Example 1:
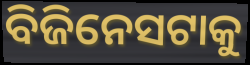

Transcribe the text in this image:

ବିଜିନେସଟାକୁ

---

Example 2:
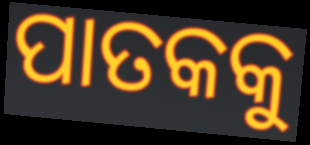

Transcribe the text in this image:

ପାତକକୁ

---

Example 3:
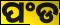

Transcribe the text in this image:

ପଂଡ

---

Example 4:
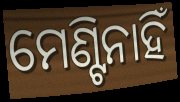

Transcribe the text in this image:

ମେଣ୍ଟିନାହିଁ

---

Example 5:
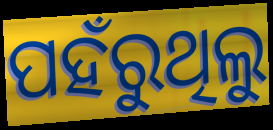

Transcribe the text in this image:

ପହଁରୁଥିଲୁ